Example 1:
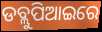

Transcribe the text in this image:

ଡବ୍ଲୁପିଆଇରେ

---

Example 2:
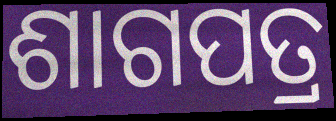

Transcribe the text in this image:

ଶାଗପତ୍ର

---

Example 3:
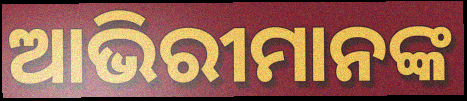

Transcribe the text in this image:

ଆଭିରୀମାନଙ୍କ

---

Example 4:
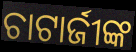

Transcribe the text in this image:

ଚାଟାର୍ଜୀଙ୍କ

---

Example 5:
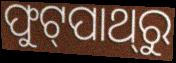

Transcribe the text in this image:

ଫୁଟ୍‌ପାଥ୍‌ରୁ